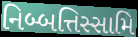
નિબ્બત્તિસ્સામિ